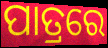
ପାତ୍ରରେ